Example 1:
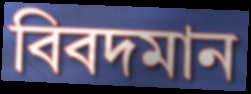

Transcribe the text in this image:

বিবদমান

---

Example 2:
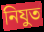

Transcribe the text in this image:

নিযুত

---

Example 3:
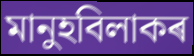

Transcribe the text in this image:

মানুহবিলাকৰ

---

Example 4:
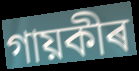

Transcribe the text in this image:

গায়কীৰ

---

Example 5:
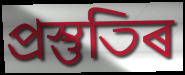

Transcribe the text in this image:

প্ৰস্তুতিৰ